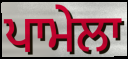
ਪਾਮੇਲਾ